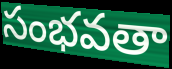
సంభవతా